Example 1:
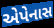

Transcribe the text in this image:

એપેનાસ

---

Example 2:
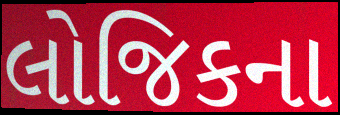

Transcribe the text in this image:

લોજિકના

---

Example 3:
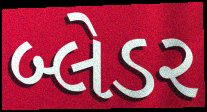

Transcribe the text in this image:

બ્લેડર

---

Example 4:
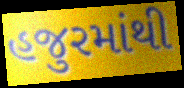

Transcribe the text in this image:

હજુરમાંથી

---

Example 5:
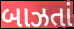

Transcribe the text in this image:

બાઝતાં